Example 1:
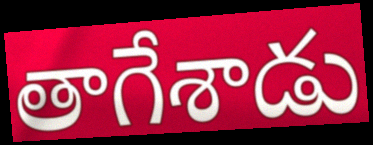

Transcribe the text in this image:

తాగేశాడు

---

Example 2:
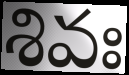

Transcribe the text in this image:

శివః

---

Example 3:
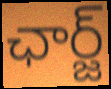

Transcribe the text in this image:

ఛార్జ్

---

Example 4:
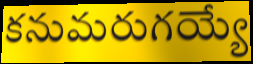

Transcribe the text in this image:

కనుమరుగయ్యే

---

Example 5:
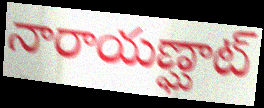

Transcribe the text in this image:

నారాయణ్ఘాట్